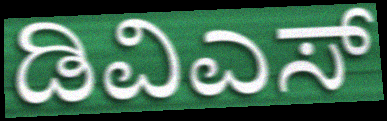
ಡಿವಿಎಸ್